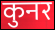
कुनर